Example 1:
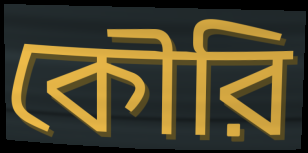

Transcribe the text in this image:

কৌরি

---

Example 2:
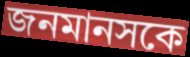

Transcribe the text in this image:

জনমানসকে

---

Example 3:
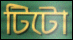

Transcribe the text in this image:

টিটো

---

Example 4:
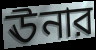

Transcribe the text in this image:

ঊনার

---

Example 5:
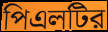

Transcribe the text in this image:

পিএলটির